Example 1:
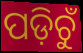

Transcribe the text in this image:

ପଡ଼ିଚୁଁ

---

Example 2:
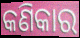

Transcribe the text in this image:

କଣିକାର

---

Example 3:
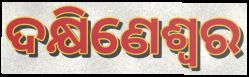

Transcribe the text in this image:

ଦକ୍ଷିଣେଶ୍ୱର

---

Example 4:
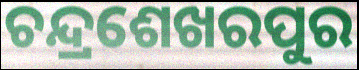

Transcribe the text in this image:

ଚନ୍ଦ୍ରଶେଖରପୁର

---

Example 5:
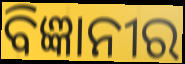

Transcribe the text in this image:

ବିଜ୍ଞାନୀର